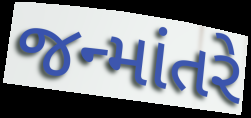
જન્માંતરે